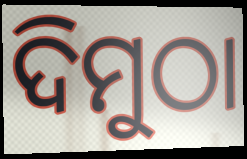
ଦିମୁଠା